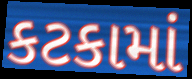
કટકામાં